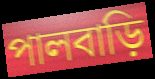
পালবাড়ি